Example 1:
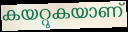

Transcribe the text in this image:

കയറ്റുകയാണ്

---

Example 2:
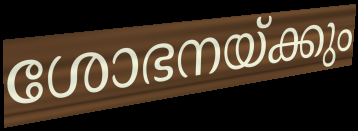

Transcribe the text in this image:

ശോഭനയ്ക്കും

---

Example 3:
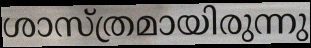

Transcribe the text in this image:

ശാസ്ത്രമായിരുന്നു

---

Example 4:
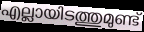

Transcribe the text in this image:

എല്ലായിടത്തുമുണ്ട്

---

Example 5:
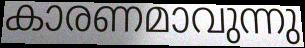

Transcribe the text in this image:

കാരണമാവുന്നു